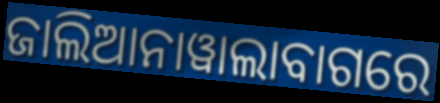
ଜାଲିଆନାୱାଲାବାଗରେ